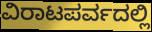
ವಿರಾಟಪರ್ವದಲ್ಲಿ